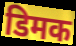
डिमक